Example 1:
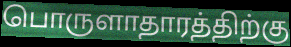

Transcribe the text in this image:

பொருளாதாரத்திற்கு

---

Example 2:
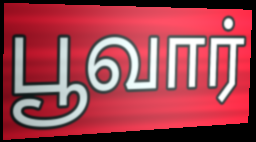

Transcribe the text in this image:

பூவார்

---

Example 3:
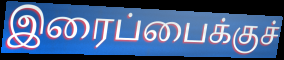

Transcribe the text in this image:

இரைப்பைக்குச்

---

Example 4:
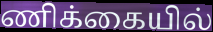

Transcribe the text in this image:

ணிக்கையில்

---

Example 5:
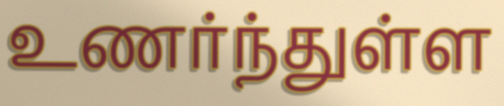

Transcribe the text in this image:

உணர்ந்துள்ள